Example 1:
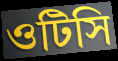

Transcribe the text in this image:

ওটিসি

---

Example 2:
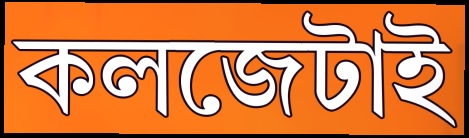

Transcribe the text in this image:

কলজেটাই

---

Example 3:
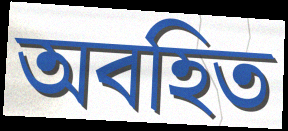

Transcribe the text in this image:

অবহিত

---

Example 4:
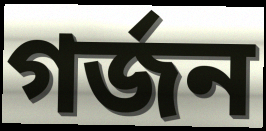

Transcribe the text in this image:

গর্জন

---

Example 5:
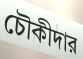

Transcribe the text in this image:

চৌকীদার